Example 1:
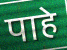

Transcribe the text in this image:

पाहे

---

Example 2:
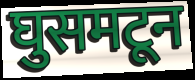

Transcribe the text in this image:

घुसमटून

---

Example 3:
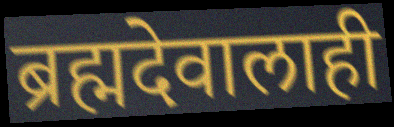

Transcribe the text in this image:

ब्रह्मदेवालाही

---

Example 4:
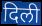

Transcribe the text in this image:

दिली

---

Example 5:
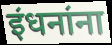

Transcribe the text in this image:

इंधनांना